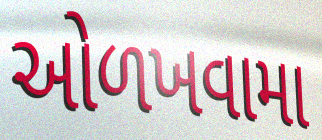
ઓળખવામા